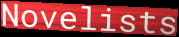
Novelists